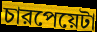
চারপেয়েটা